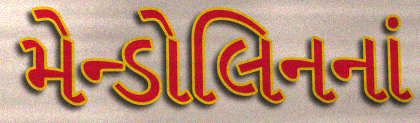
મેન્ડોલિનનાં